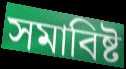
সমাবিষ্ট